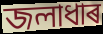
জলাধাৰ